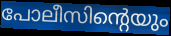
പോലീസിന്റെയും